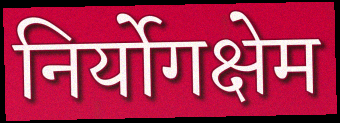
निर्योगक्षेम